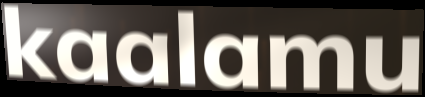
kaalamu